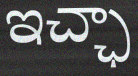
ఇచ్ఛా